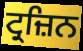
ਟ੍ਰਜ਼ਿਨ